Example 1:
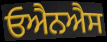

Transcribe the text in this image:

ਓਐਨਐਸ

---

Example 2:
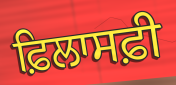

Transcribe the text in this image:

ਫ਼ਿਲਾਸਫ਼ੀ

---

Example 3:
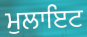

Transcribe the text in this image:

ਮੁਲਾਇਟ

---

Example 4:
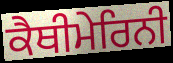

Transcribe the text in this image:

ਕੈਥੀਮੇਰਿਨੀ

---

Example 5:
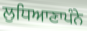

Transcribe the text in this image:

ਲੁਧਿਆਣਾਪੰਨੇ